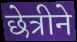
छेत्रीने